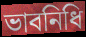
ভাবনিধি